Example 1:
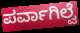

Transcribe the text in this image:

ಪರ್ವಾಗಿಲ್ವೆ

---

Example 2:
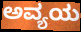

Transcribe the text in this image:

ಅವ್ಯಯ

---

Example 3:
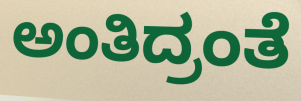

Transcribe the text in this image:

ಅಂತಿದ್ರಂತೆ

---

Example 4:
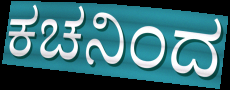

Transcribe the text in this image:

ಕಚನಿಂದ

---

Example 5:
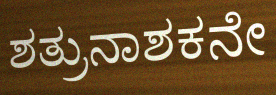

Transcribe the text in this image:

ಶತ್ರುನಾಶಕನೇ